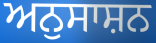
ਅਨੁਸਾਸ਼ਨ